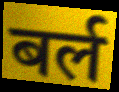
बर्ल